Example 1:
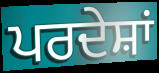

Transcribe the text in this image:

ਪਰਦੇਸ਼ਾਂ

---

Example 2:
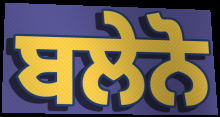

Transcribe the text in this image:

ਬਲੇਨੋ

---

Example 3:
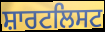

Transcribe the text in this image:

ਸ਼ਾਰਟਲਿਸਟ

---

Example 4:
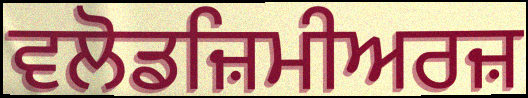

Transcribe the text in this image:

ਵਲੋਡਜ਼ਿਮੀਅਰਜ਼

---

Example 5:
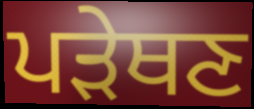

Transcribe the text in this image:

ਪੜੇਥਣ